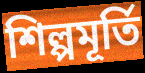
শিল্পমূর্তি